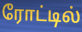
ரோட்டில்